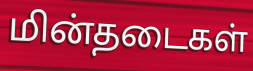
மின்தடைகள்